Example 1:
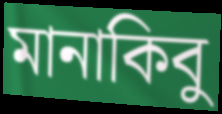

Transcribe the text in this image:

মানাকিবু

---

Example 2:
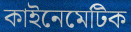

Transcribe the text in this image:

কাইনেমেটিক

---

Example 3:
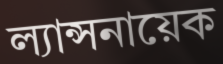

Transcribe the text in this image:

ল্যান্সনায়েক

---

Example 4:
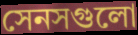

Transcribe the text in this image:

সেনসগুলো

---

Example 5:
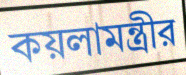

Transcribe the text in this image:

কয়লামন্ত্রীর